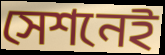
সেশনেই